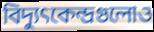
বিদ্যুৎকেন্দ্রগুলোও